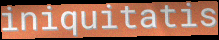
iniquitatis